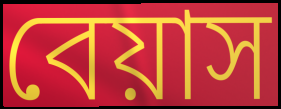
বেয়াস